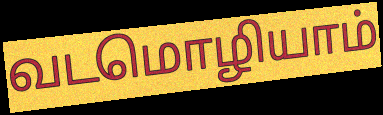
வடமொழியாம்